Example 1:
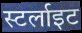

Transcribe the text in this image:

स्टर्लाइट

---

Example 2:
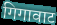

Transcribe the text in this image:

गिगावाट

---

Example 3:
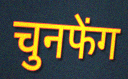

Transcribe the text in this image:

चुनफेंग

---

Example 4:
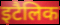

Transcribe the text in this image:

इटैलिक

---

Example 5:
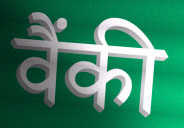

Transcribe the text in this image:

वैंकी